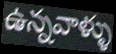
ఉన్నవాళ్ళు